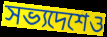
সভ্যদেশেও